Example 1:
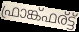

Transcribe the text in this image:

ഫ്രാങ്ക്ഫര്ട്ട്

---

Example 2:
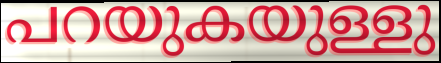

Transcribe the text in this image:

പറയുകയുള്ളു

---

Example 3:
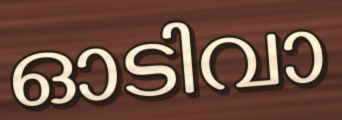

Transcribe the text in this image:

ഓടിവാ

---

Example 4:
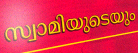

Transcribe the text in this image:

സ്വാമിയുടെയും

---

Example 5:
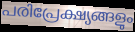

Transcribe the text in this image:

പരിപ്രേക്ഷ്യങ്ങളും